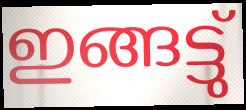
ഇങ്ങട്ടു്